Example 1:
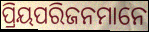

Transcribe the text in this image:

ପ୍ରିୟପରିଜନମାନେ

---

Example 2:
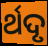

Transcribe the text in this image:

ର୍ଥଦୃ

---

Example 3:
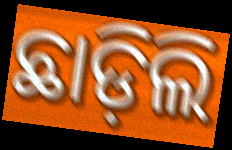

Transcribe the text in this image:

ଛାଡ଼ିଲି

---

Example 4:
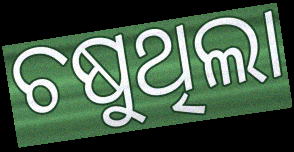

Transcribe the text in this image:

ଚଷୁଥିଲା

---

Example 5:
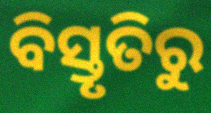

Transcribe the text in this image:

ବିସ୍ତୃତିରୁ